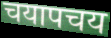
चयापचय